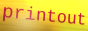
printout